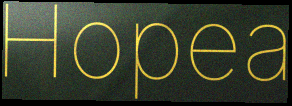
Hopea